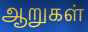
ஆறுகள்